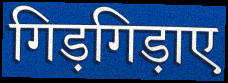
गिड़गिड़ाए